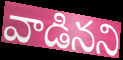
వాడినని